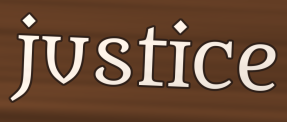
justice